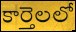
కార్తెలలో